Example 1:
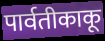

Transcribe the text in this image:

पार्वतीकाकू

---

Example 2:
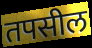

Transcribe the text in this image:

तपसील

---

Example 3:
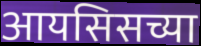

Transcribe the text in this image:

आयसिसच्या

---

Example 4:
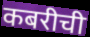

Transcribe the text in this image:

कबरीची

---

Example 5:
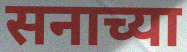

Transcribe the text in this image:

सनाच्या